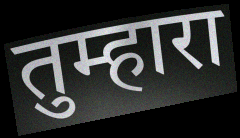
तुम्हारा